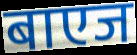
बाएज